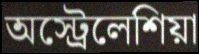
অস্ট্রেলেশিয়া